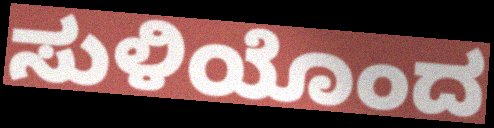
ಸುಳಿಯೊಂದ